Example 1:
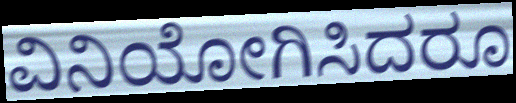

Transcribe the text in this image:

ವಿನಿಯೋಗಿಸಿದರೂ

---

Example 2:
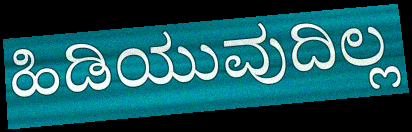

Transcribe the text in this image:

ಹಿಡಿಯುವುದಿಲ್ಲ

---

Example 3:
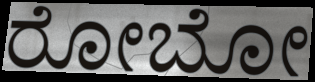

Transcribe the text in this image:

ರೋಬೋ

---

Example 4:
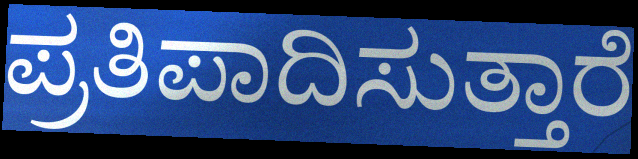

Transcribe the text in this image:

ಪ್ರತಿಪಾದಿಸುತ್ತಾರೆ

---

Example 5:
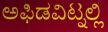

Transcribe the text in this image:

ಅಫಿಡವಿಟ್ನಲ್ಲಿ